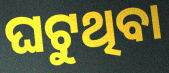
ଘଟୁଥିବା